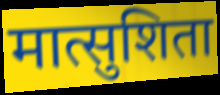
मात्सुशिता